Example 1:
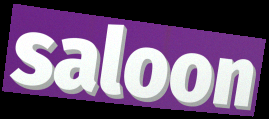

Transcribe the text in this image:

saloon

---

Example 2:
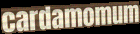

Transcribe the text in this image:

cardamomum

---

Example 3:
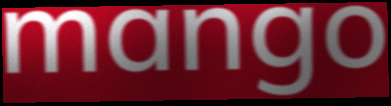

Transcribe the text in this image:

mango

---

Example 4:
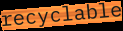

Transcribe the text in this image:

recyclable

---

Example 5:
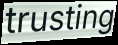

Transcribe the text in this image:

trusting